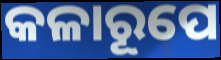
କଳାରୂପେ